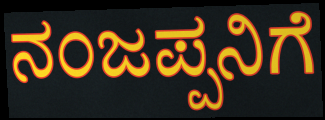
ನಂಜಪ್ಪನಿಗೆ